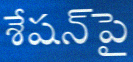
శేషన్‌పై